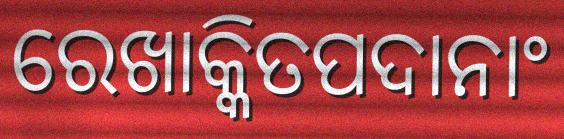
ରେଖାକ୍କିତପଦାନାଂ